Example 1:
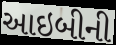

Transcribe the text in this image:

આઇબીની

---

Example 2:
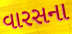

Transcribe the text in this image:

વારસના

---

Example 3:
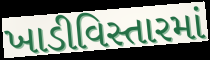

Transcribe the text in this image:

ખાડીવિસ્તારમાં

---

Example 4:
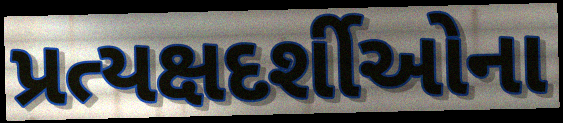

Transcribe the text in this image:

પ્રત્યક્ષદર્શીઓના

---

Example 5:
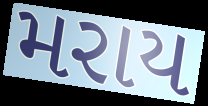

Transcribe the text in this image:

મરાય